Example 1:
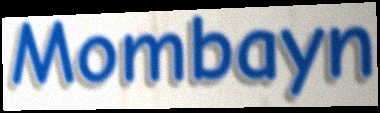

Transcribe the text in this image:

Mombayn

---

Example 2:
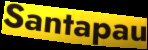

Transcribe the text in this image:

Santapau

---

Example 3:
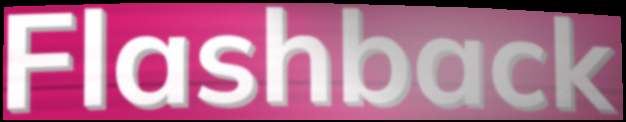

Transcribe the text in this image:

Flashback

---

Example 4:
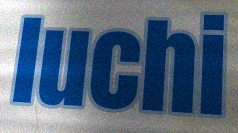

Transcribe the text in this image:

luchi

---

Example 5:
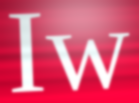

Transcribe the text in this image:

Iw